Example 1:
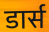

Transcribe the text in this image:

डार्स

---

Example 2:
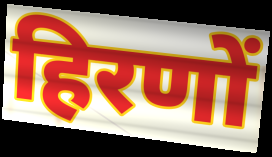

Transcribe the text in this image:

हिरणों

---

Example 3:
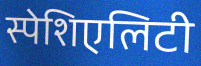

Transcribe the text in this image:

स्पेशिएलिटी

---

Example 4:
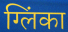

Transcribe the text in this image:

ग्लिंका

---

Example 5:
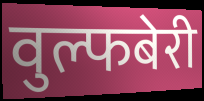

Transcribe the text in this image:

वुल्फबेरी